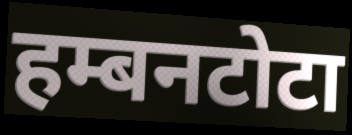
हम्बनटोटा